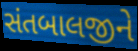
સંતબાલજીને